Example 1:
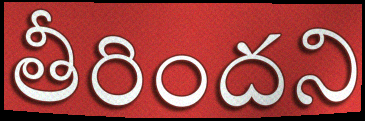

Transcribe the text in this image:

తీరిందని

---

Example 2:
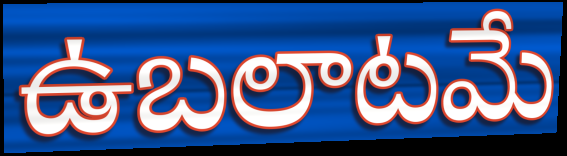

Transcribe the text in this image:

ఉబలాటమే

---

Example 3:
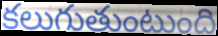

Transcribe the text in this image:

కలుగుతుంటుంది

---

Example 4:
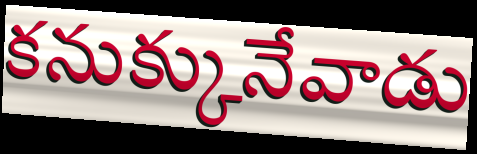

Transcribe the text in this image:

కనుక్కునేవాడు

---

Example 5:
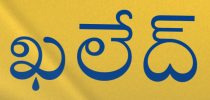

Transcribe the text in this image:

ఖలేద్